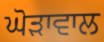
ਘੋੜਾਵਾਲ